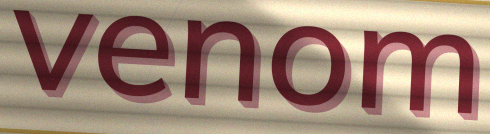
venom